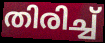
തിരിച്ച്